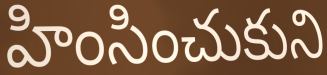
హింసించుకుని